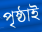
পৃষ্ঠাই